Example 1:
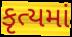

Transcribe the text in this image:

કૃત્યમાં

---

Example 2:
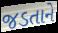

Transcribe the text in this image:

જડતાને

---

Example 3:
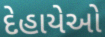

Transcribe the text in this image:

દેહાયેઓ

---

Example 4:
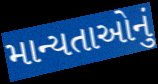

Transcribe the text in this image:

માન્યતાઓનું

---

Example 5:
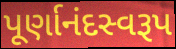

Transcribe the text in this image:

પૂર્ણાનંદસ્વરૂપ